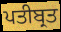
ਪਤੀਬ੍ਰਤ